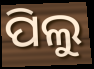
ପିଲୁ